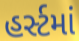
હર્સ્ટમાં